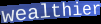
wealthier